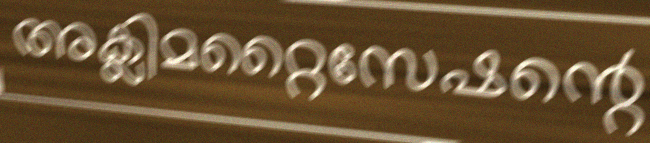
അക്ലിമറ്റൈസേഷന്റെ